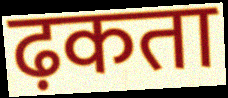
ढ़कता